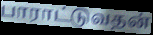
பாராட்டுவதன்